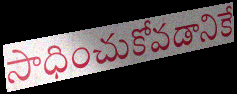
సాధించుకోవడానికే